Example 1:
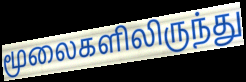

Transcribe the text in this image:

மூலைகளிலிருந்து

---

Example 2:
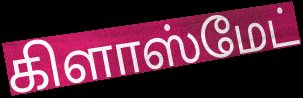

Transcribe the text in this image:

கிளாஸ்மேட்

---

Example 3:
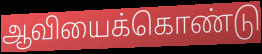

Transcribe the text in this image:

ஆவியைக்கொண்டு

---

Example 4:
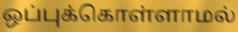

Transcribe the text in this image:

ஒப்புக்கொள்ளாமல்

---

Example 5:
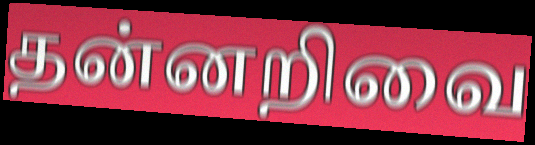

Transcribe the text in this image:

தன்னறிவை